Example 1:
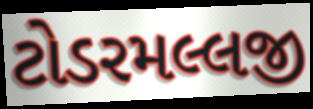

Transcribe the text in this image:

ટોડરમલ્લજી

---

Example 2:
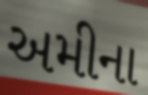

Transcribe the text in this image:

અમીના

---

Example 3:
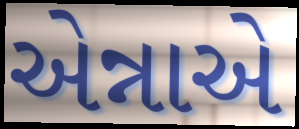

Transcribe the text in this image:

એન્નાએ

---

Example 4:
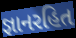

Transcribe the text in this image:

જ્ઞાનરહિત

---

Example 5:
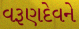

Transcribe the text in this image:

વરૂણદેવને